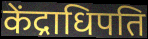
केंद्राधिपति